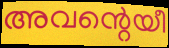
അവന്റെയീ